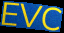
EVC